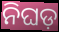
ନିଘଡ଼